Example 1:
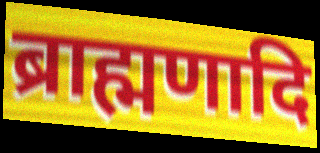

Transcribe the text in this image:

ब्राह्मणादि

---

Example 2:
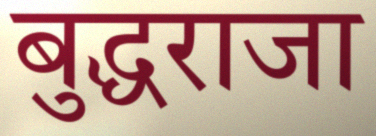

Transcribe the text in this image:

बुद्धराजा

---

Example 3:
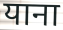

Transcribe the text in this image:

याना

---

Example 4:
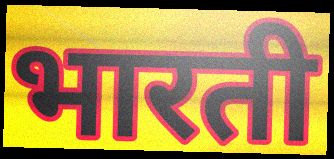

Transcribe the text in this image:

भारती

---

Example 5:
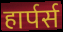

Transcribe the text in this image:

हार्पर्स